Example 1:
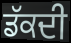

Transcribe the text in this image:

ਡੱਕਦੀ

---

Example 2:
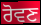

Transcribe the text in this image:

ਰੋਵਣ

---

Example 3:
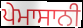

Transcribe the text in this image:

ਪੇਮਾਸਾਨੀ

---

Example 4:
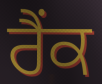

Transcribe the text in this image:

ਰੈੰਕ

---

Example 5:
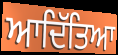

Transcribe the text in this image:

ਆਦਿੱਤਿਆ